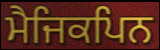
ਮੈਜਿਕਪਿਨ